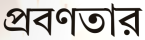
প্রবণতার